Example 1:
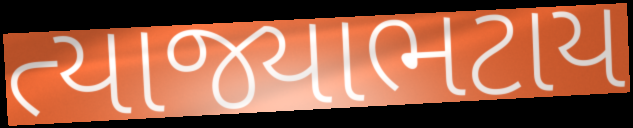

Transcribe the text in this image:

ત્યાજ્યાભટાય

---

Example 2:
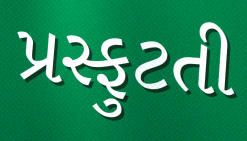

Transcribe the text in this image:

પ્રસ્ફુટતી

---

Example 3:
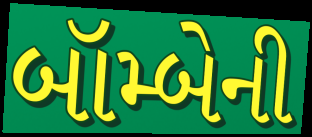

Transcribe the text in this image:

બૉમ્બેની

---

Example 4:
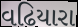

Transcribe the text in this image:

વઢિયારા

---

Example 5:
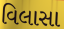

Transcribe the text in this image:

વિલાસા